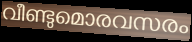
വീണ്ടുമൊരവസരം